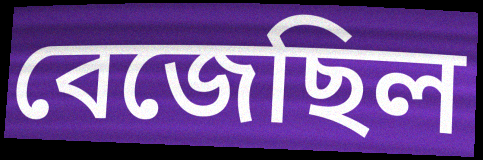
বেজেছিল